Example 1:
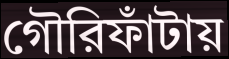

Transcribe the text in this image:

গৌরিফাঁটায়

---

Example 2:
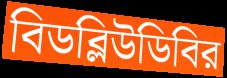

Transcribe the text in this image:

বিডব্লিউডিবির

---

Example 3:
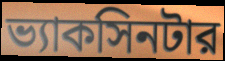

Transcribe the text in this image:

ভ্যাকসিনটার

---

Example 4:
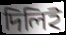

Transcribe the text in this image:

দিলিই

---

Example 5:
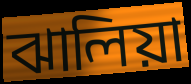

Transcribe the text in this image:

ঝালিয়া